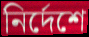
নির্দেশে